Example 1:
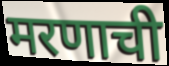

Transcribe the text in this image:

मरणाची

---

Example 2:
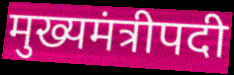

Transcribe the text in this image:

मुख्यमंत्रीपदी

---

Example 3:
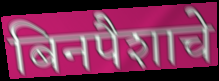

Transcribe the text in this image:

बिनपैशाचे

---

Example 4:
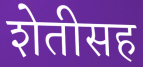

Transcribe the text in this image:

शेतीसह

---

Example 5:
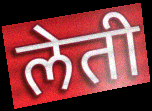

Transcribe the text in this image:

लेती